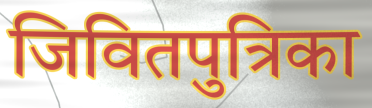
जिवितपुत्रिका